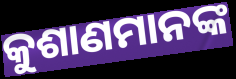
କୁଶାଣମାନଙ୍କ